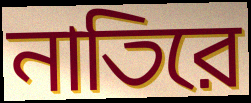
নাতিরে